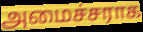
அமைச்சராக